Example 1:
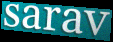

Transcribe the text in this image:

sarav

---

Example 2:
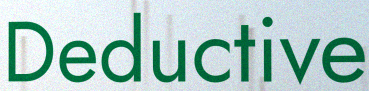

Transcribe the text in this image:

Deductive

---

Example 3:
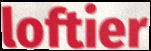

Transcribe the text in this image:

loftier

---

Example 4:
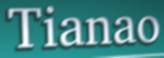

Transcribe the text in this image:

Tianao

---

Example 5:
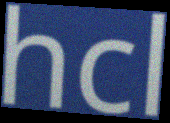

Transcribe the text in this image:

hcl